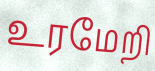
உரமேறி